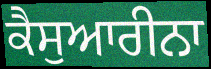
ਕੈਸੁਆਰੀਨਾ